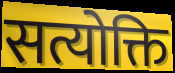
सत्योक्ति